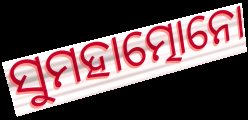
ସୁମହାତ୍ମୋନୋ